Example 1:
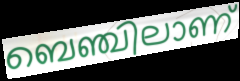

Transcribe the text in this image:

ബെഞ്ചിലാണ്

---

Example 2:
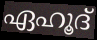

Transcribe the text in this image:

ഏഹൂദ്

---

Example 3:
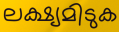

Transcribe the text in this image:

ലക്ഷ്യമിടുക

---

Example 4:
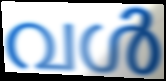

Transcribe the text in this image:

വൾ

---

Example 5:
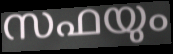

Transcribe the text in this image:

സഫയും